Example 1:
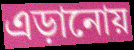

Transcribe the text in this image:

এড়ানোয়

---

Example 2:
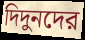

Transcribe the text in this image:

দিদুনদের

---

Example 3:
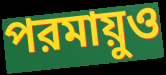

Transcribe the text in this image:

পরমায়ুও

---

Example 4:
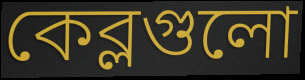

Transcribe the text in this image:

কেব্লগুলো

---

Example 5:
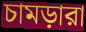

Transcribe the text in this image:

চামড়ারা